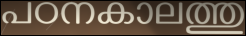
പഠനകാലത്തു